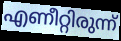
എണീറ്റിരുന്ന്